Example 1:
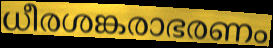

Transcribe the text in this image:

ധീരശങ്കരാഭരണം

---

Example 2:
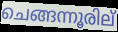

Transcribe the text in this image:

ചെങ്ങന്നൂരില്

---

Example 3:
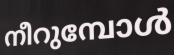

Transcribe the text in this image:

നീറുമ്പോൾ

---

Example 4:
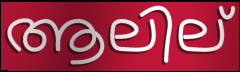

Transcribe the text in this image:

ആലില്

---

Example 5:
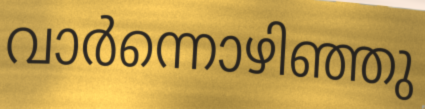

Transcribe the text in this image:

വാർന്നൊഴിഞ്ഞു